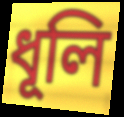
ধূলি